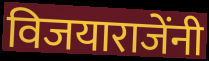
विजयाराजेंनी